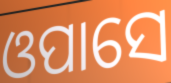
ଓପାସେ